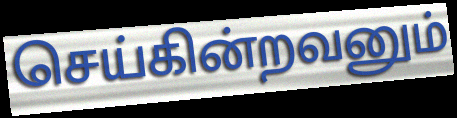
செய்கின்றவனும்